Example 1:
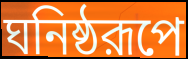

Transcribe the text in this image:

ঘনিষ্ঠরূপে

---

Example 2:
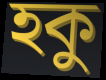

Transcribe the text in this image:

হকু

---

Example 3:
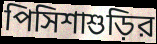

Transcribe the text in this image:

পিসিশাশুড়ির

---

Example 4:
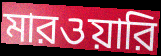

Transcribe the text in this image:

মারওয়ারি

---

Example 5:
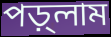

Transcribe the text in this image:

পড়্‌লাম